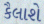
કૈલાશે